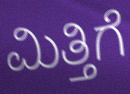
ಮಿತ್ತಿಗೆ